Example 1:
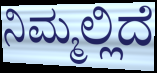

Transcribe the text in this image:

ನಿಮ್ಮಲ್ಲಿದೆ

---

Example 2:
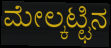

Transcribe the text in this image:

ಮೇಲ್ಕಟ್ಟಿನ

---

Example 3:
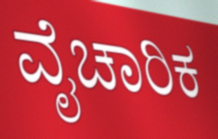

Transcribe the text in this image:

ವೈಚಾರಿಕ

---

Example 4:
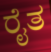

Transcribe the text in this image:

ರೈತ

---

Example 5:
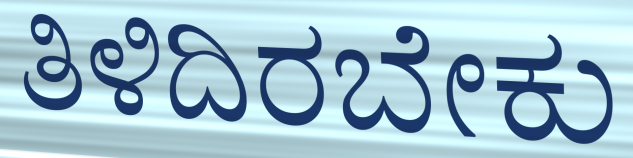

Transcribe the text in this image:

ತಿಳಿದಿರಬೇಕು